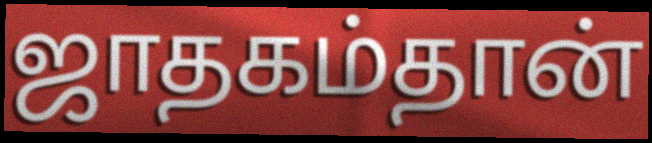
ஜாதகம்தான்